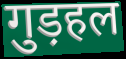
गुड़हल